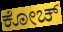
ಕೋಚ್